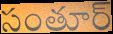
సంతూర్